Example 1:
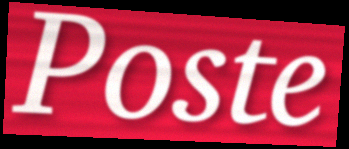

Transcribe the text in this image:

Poste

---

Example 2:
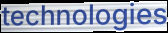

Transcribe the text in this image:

technologies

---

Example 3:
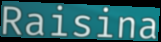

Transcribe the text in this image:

Raisina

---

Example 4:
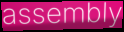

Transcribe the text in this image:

assembly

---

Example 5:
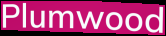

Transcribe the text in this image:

Plumwood